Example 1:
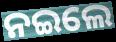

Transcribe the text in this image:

ନଇଲେ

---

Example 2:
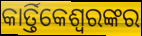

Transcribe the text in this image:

କାର୍ତ୍ତିକେଶ୍ୱରଙ୍କର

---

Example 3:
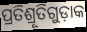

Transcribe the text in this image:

ପ୍ରତିଶ୍ରୂତିଗୁଡ଼ାକ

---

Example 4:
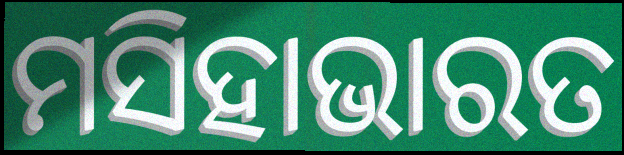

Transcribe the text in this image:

ମସିହାଭାରତ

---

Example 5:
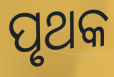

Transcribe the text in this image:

ପୃଥକ